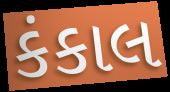
કંકાલ